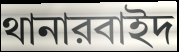
থানারবাইদ